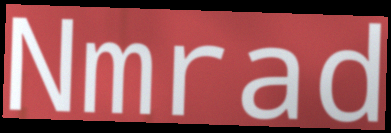
Nmrad